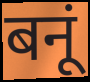
बनूं